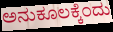
ಅನುಕೂಲಕ್ಕೆಂದು